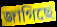
জাগিছে